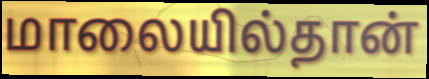
மாலையில்தான்